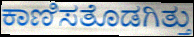
ಕಾಣಿಸತೊಡಗಿತ್ತು